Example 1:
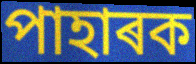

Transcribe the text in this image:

পাহাৰক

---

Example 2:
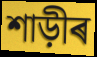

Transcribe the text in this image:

শাড়ীৰ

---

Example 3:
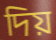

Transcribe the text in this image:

দিয়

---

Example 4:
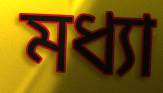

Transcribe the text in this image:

মধ্যা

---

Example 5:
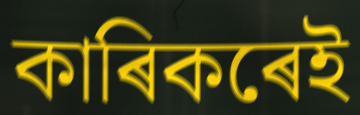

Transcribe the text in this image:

কাৰিকৰেই